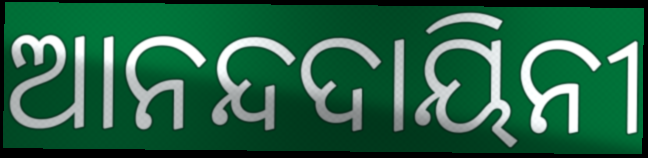
ଆନନ୍ଦଦାୟିନୀ